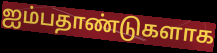
ஐம்பதாண்டுகளாக